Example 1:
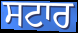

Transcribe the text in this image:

ਸਟਾਰ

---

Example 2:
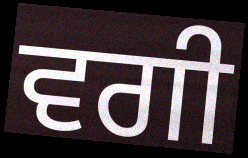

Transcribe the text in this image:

ਵਗੀ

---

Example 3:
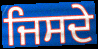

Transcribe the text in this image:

ਜਿਸਦੇ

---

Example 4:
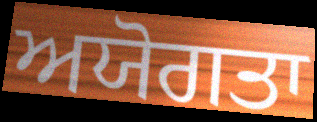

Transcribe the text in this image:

ਅਯੋਗਤਾ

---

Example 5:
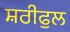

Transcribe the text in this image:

ਸ਼ਰੀਫੁਲ